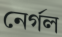
নের্গল